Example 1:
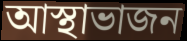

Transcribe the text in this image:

আস্থাভাজন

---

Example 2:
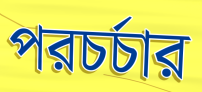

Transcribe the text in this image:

পরচর্চার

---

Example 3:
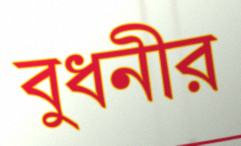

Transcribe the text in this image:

বুধনীর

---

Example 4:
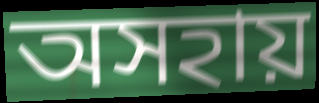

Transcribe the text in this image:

অসহায়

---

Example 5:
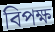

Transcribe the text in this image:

বিপক্ষ